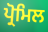
ਪ੍ਰੋਮਿਲ